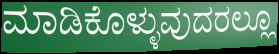
ಮಾಡಿಕೊಳ್ಳುವುದರಲ್ಲೂ